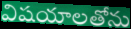
విషయాలతోను